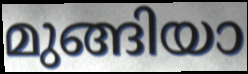
മുങ്ങിയാ